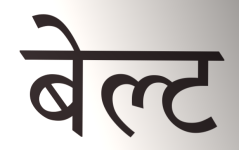
बेल्ट